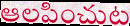
ఆలపించుట